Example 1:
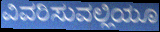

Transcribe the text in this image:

ವಿವರಿಸುವಲ್ಲಿಯೂ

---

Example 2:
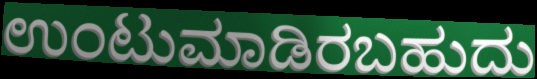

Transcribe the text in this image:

ಉಂಟುಮಾಡಿರಬಹುದು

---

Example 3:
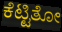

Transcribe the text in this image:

ಕೆಟ್ಟಿತೋ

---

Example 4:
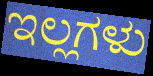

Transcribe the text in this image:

ಇಲ್ಲಗಳು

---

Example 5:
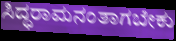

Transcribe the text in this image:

ಸಿದ್ಧರಾಮನಂತಾಗಬೇಕು